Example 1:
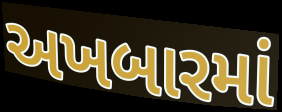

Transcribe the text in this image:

અખબારમાં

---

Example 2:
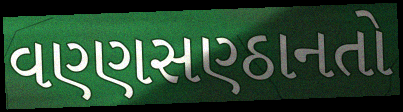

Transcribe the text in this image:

વણ્ણસણ્ઠાનતો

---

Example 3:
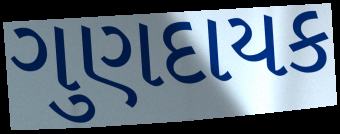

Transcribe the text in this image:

ગુણદાયક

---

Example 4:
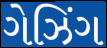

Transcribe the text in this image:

ગેઝિંગ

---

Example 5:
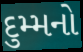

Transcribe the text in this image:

દુમ્મનો